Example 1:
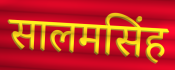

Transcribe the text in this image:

सालमसिंह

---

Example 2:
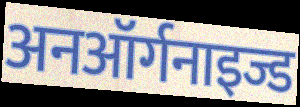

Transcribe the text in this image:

अनऑर्गनाइज्ड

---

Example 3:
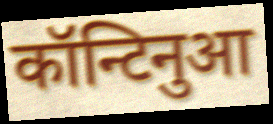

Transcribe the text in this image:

कॉन्टिनुआ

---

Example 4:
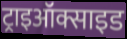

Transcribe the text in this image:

ट्राइऑक्साइड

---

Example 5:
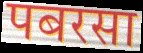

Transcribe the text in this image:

पबरसा